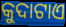
କୁଦାଟାଏ